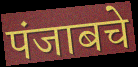
पंजाबचे